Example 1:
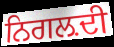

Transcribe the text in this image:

ਨਿਗਲ਼ਦੀ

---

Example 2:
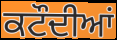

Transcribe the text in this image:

ਕਟੌਦੀਆਂ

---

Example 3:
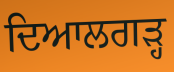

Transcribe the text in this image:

ਦਿਆਲਗੜ੍ਹ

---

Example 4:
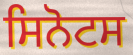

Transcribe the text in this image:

ਸਿਨੋਟਸ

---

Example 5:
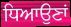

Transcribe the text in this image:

ਧਿਆਉਣਾਂ